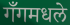
गँगमधले